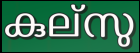
കുല്സു